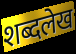
शब्दलेख